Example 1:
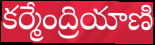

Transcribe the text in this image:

కర్మేంద్రియాణి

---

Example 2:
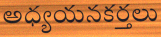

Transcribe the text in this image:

అధ్యయనకర్తలు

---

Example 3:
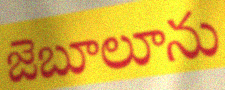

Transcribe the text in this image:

జెబూలూను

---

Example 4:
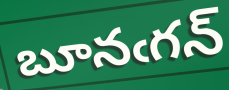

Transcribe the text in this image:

బూనఁగన్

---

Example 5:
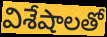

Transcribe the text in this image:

విశేషాలతో